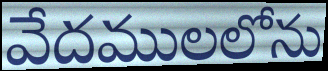
వేదములలోను